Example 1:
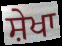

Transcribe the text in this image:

ਸ਼ੇਖਾ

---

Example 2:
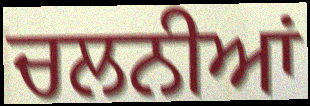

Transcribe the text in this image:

ਚਲਨੀਆਂ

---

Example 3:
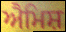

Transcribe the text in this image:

ਐਮਿਸ਼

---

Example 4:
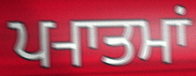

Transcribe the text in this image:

ਪ੍ਮਾਤਮਾਂ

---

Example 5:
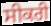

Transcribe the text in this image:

ਸੀਕਰੀ